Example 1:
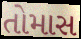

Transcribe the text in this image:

તોમાસ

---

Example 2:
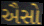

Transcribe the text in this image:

ઐસો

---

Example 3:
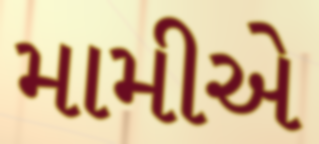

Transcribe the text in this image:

મામીએ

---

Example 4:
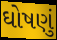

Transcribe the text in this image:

ઘોષણું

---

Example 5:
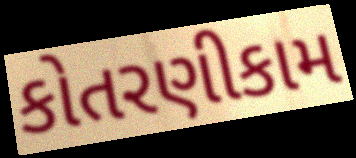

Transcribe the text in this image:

કોતરણીકામ